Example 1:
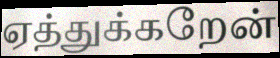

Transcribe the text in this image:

ஏத்துக்கறேன்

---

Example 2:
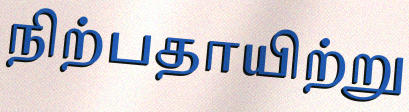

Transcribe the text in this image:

நிற்பதாயிற்று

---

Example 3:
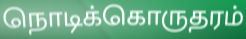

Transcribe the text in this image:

நொடிக்கொருதரம்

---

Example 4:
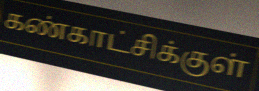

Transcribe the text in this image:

கண்காட்சிக்குள்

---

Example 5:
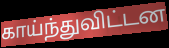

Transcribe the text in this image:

காய்ந்துவிட்டன